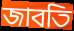
জাবতি